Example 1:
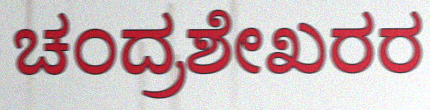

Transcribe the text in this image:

ಚಂದ್ರಶೇಖರರ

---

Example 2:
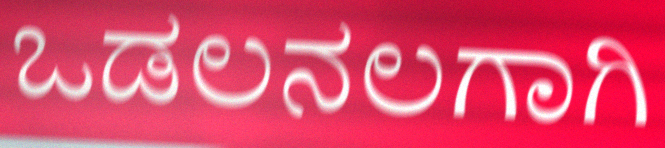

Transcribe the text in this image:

ಒಡಲನಲಗಾಗಿ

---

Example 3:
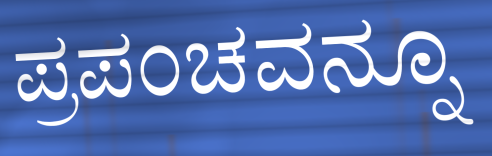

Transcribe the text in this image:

ಪ್ರಪಂಚವನ್ನೂ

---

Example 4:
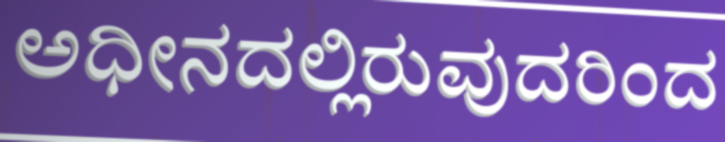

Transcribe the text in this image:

ಅಧೀನದಲ್ಲಿರುವುದರಿಂದ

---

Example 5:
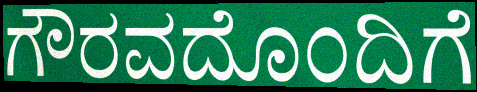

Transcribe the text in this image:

ಗೌರವದೊಂದಿಗೆ